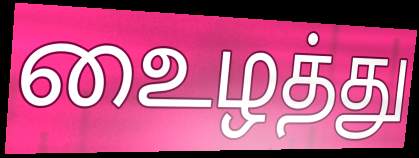
உைழத்து